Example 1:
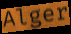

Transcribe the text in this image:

Alger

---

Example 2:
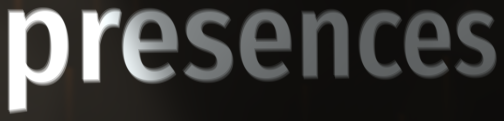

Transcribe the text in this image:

presences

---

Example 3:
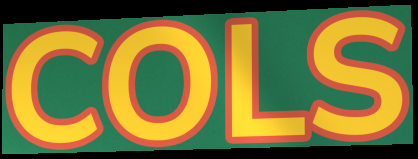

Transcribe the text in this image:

COLS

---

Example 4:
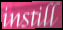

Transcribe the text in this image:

instill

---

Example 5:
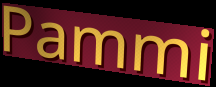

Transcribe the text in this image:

Pammi